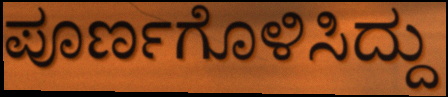
ಪೂರ್ಣಗೊಳಿಸಿದ್ದು